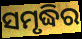
ସମୃଦ୍ଧିର